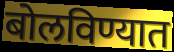
बोलविण्यात